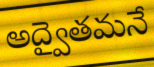
అద్వైతమనే